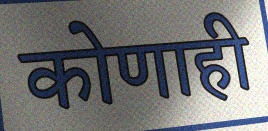
कोणाही